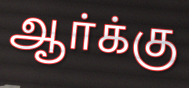
ஆர்க்கு